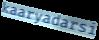
kaaryadarsi